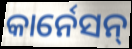
କାର୍ନେସନ୍